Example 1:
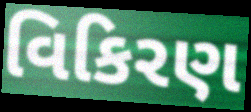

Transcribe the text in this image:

વિકિરણ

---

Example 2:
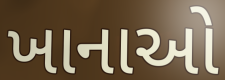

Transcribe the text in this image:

ખાનાઓ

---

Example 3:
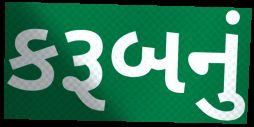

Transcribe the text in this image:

કરૂબનું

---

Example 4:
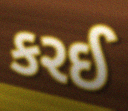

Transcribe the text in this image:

કરઈ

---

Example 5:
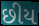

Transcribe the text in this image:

છીય